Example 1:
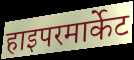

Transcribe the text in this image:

हाइपरमार्केट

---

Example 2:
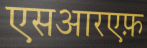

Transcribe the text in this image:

एसआरएफ़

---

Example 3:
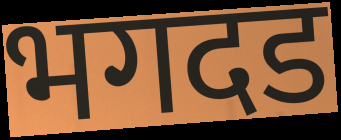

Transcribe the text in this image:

भगदड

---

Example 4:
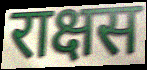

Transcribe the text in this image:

राक्षस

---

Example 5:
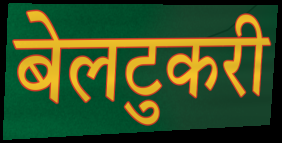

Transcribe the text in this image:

बेलटुकरी